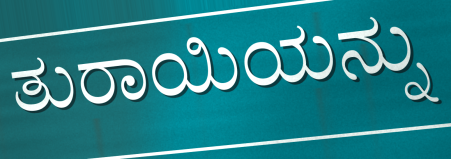
ತುರಾಯಿಯನ್ನು